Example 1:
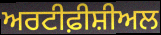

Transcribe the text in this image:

ਅਰਟੀਫ਼ੀਸ਼ੀਅਲ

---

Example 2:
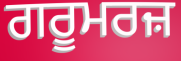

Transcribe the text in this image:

ਗਰੂਮਰਜ਼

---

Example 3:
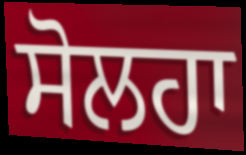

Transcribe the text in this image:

ਸੋਲਹਾ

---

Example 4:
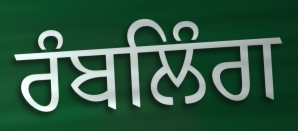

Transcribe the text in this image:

ਰੰਬਲਿੰਗ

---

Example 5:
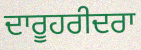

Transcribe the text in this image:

ਦਾਰੂਹਰੀਦਰਾ